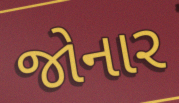
જોનાર